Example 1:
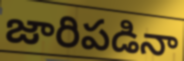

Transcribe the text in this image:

జారిపడినా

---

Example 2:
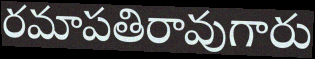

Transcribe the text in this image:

రమాపతిరావుగారు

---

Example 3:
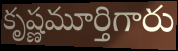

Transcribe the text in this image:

కృష్ణమూర్తిగారు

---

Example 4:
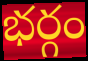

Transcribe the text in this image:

భర్గం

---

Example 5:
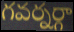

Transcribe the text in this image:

గవర్నర్గా